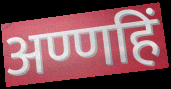
अण्णहिं